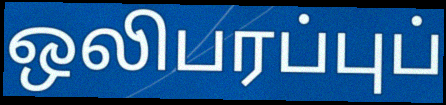
ஒலிபரப்புப்